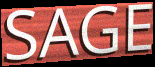
SAGE